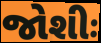
જોશીઃ